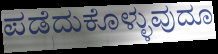
ಪಡೆದುಕೊಳ್ಳುವುದೂ